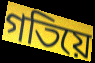
গতিয়ে